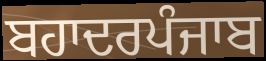
ਬਹਾਦਰਪੰਜਾਬ